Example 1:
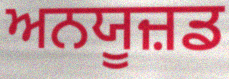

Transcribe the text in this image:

ਅਨਯੂਜ਼ਡ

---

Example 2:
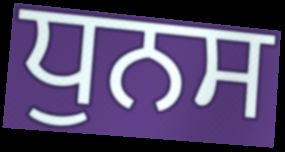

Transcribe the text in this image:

ਧੁਨਸ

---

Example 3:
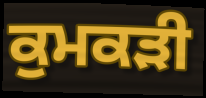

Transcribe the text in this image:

ਕੁਮਕੜੀ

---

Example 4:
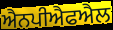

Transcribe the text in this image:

ਐਨਪੀਐਫਐਲ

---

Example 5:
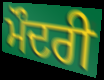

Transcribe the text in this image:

ਮੌਦਰੀ